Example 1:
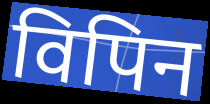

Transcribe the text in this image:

विपिन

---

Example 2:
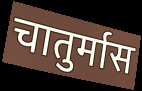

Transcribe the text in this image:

चातुर्मास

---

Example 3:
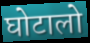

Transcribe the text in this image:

घोटालो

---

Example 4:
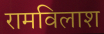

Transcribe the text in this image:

रामविलाश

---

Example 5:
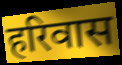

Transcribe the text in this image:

हरिवास